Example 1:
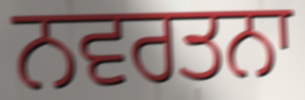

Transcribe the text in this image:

ਨਵਰਤਨਾ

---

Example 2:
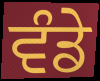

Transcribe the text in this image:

ਵੰਡੇ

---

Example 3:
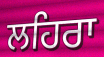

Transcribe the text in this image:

ਲਹਿਰਾ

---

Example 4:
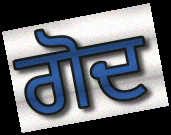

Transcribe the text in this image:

ਗੋਦ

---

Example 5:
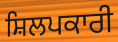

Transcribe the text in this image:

ਸ਼ਿਲਪਕਾਰੀ